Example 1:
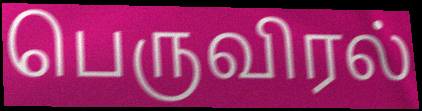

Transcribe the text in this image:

பெருவிரல்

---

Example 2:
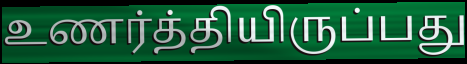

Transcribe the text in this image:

உணர்த்தியிருப்பது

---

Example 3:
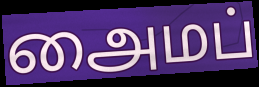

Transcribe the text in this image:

அைமப்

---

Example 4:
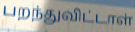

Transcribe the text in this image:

பறந்துவிட்டாள்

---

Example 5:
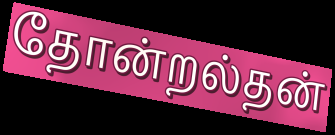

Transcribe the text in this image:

தோன்றல்தன்